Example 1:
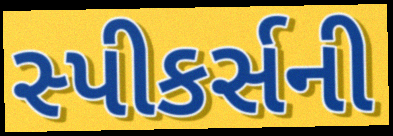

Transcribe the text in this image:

સ્પીકર્સની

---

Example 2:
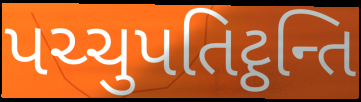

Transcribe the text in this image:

પચ્ચુપતિટ્ઠન્તિ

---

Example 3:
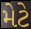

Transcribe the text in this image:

મેટે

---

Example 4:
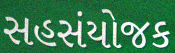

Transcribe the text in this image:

સહસંયોજક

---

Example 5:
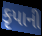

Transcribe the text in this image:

કૃપાની